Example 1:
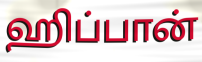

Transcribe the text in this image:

ஹிப்பான்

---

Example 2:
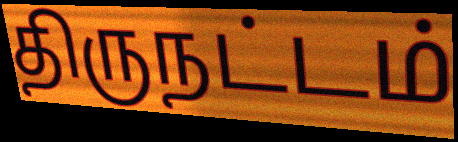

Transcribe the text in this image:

திருநட்டம்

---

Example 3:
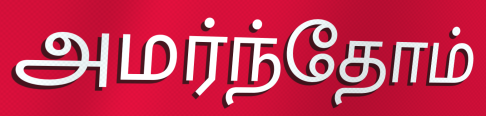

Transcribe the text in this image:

அமர்ந்தோம்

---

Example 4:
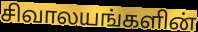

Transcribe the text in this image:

சிவாலயங்களின்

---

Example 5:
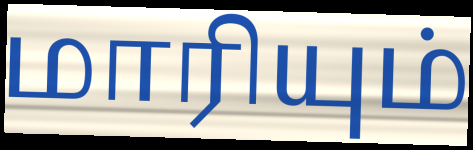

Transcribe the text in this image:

மாரியும்